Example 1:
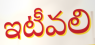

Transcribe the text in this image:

ఇటీవలి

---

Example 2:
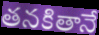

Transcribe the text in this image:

తనకితానే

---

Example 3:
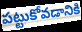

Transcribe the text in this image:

పట్టుకోవడానికి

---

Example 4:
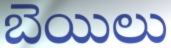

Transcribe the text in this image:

బెయిలు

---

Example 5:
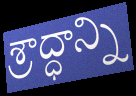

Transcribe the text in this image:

శ్రాద్ధాన్ని